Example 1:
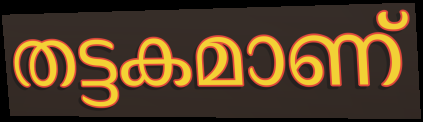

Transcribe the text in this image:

തട്ടകമാണ്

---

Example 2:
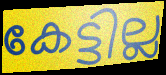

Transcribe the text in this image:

കേട്ടില്ല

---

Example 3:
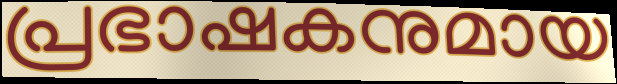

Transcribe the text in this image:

പ്രഭാഷകനുമായ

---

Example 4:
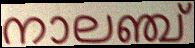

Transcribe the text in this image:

നാലഞ്ച്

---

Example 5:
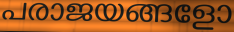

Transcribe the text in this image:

പരാജയങ്ങളോ